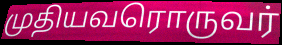
முதியவரொருவர்